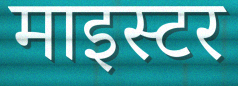
माइस्टर